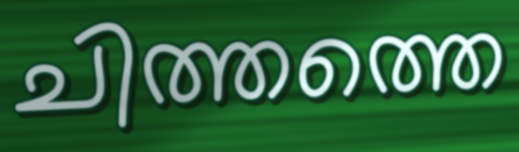
ചിത്തത്തെ